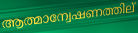
ആത്മാന്വേഷണത്തില്